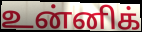
உன்னிக்